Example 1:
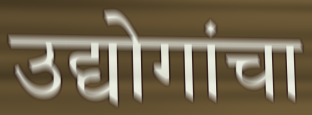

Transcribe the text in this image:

उद्योगांचा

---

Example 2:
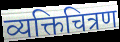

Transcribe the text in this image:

व्यक्तिचित्रण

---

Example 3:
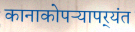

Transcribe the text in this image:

कानाकोपऱ्यापर्यंत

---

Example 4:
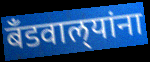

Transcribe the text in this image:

बँडवाल्यांना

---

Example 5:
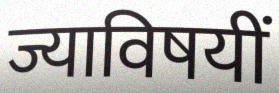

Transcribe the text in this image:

ज्याविषयीं